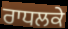
ਰਾਧਲਕੇ